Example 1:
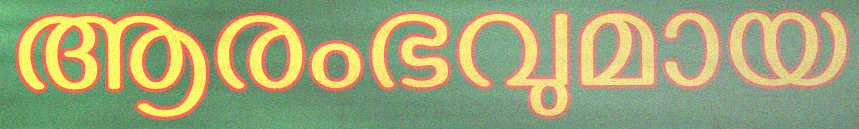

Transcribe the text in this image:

ആരംഭവുമായ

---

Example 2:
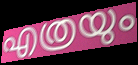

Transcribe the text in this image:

എത്രയും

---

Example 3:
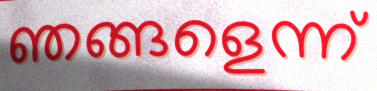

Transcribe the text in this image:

ഞങ്ങളെന്ന്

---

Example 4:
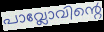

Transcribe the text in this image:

പാവ്ലോവിന്റെ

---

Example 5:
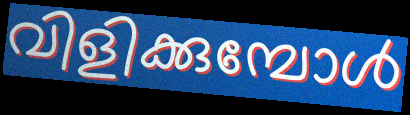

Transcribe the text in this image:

വിളിക്കുമ്പോൾ